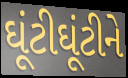
ઘૂંટીઘૂંટીને